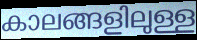
കാലങ്ങളിലുള്ള